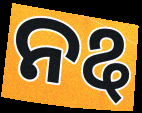
ନୡ